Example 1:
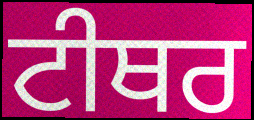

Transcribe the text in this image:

ਟੀਥਰ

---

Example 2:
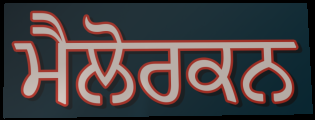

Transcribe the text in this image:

ਮੈਲੋਰਕਨ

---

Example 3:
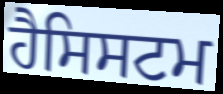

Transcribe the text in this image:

ਹੈਸਿਸਟਮ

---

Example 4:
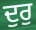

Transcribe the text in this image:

ਦੁਰੁ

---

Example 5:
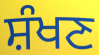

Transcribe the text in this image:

ਸ਼ੰਖਣ